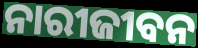
ନାରୀଜୀବନ